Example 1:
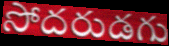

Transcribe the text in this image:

సోదరుడగు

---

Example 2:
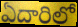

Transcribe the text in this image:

ఏదారిలో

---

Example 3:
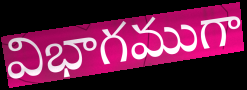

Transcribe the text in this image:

విభాగముగా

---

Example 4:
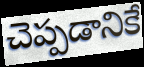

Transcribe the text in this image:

చెప్పడానికే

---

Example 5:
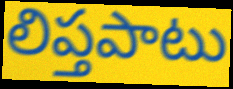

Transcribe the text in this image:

లిప్తపాటు